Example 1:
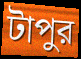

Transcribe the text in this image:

টাপুর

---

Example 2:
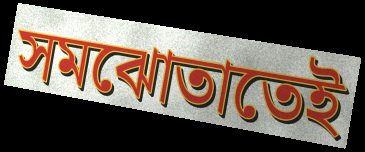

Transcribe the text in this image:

সমঝোতাতেই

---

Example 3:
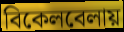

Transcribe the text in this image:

বিকেলবেলায়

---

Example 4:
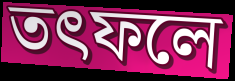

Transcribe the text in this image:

তৎফলে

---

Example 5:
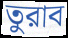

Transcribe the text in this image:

তুরাব